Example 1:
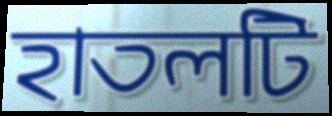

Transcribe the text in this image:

হাতলটি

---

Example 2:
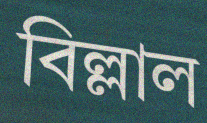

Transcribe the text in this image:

বিল্লাল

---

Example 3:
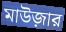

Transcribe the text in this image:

মাউজ়ার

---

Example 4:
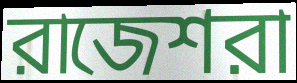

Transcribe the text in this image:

রাজেশরা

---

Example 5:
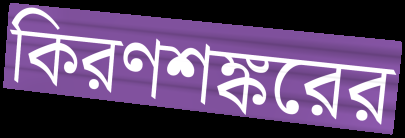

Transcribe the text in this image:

কিরণশঙ্করের